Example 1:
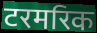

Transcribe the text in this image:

टरमरिक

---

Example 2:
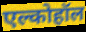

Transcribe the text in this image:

एल्कोहॉल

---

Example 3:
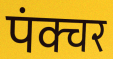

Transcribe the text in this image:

पंक्चर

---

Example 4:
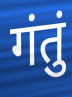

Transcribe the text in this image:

गंतुं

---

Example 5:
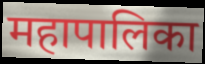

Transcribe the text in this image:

महापालिका